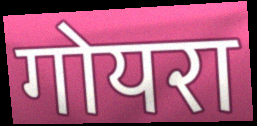
गोयरा